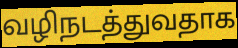
வழிநடத்துவதாக